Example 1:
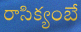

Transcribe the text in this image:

రాసిక్యంబే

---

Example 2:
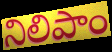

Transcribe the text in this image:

నిలిపాం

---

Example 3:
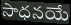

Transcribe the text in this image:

సాధనయే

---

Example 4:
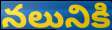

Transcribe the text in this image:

నలునికి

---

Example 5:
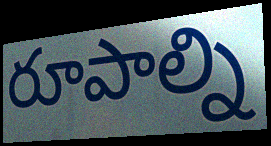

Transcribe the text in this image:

రూపాల్ని